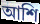
আশি